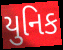
યુનિક